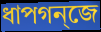
ধাপগন্জে